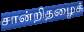
சான்றிதழைக்